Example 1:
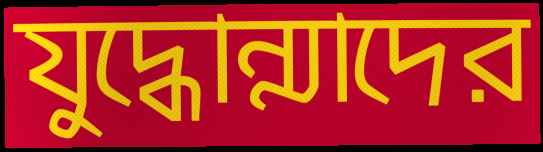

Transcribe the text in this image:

যুদ্ধোন্মাদের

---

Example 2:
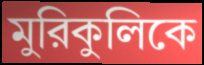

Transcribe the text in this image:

মুরিকুলিকে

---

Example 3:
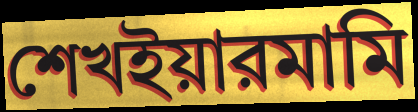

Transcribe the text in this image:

শেখইয়ারমামি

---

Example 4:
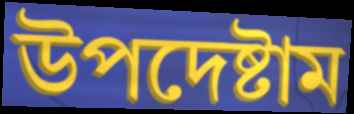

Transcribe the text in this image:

উপদেষ্টাম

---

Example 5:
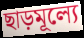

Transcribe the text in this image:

ছাড়মূল্যে